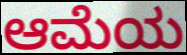
ಆಮೆಯ